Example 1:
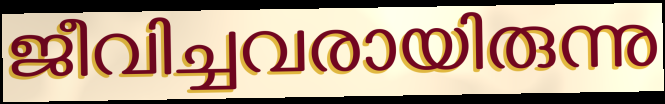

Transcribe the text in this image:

ജീവിച്ചവരായിരുന്നു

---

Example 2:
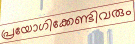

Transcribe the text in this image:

പ്രയോഗിക്കേണ്ടിവരും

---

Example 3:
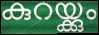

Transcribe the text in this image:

കുറയ്ക്കും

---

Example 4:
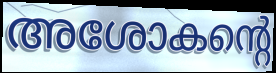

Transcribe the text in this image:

അശോകന്റെ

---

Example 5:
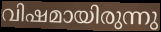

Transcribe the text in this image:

വിഷമായിരുന്നു